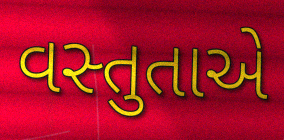
વસ્તુતાએ